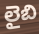
లైబి